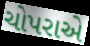
ચોપરાએ